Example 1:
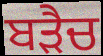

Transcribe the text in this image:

ਬੜੈਚ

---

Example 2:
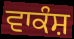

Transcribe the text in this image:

ਵਾਕੰਸ਼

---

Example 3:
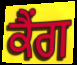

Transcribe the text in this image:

ਕੈਂਗ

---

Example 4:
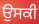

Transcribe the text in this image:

ਉਸਕੀ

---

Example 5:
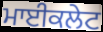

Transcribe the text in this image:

ਮਾਈਕਲੇਟ